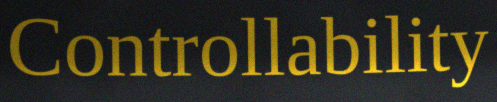
Controllability